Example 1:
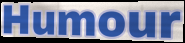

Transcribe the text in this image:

Humour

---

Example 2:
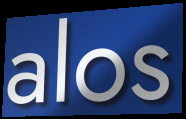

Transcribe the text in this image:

alos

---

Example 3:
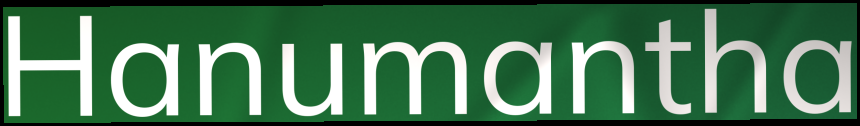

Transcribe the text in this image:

Hanumantha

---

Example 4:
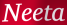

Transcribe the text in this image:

Neeta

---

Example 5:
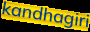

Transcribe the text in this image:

kandhagiri